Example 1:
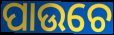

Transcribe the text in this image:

ପାଉଚେ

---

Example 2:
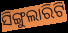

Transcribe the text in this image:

ସିଙ୍ଗୁଲାରିଟି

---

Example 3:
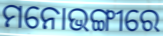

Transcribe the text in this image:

ମନୋଭଙ୍ଗୀରେ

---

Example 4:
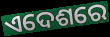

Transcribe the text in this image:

ଏଦେଶରେ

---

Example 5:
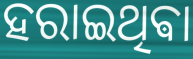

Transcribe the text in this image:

ହରାଇଥିଵା